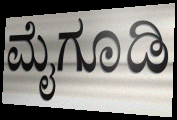
ಮೈಗೂಡಿ